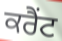
ਕਰੈਂਟ